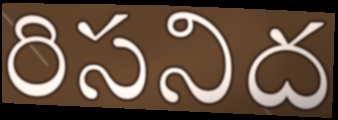
రిసనిద